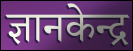
ज्ञानकेन्द्र